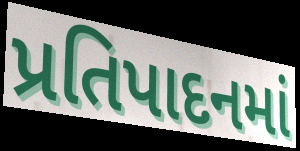
પ્રતિપાદનમાં